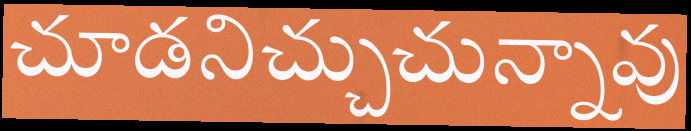
చూడనిచ్చుచున్నావు